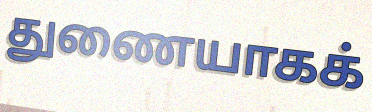
துணையாகக்